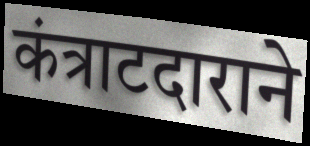
कंत्राटदाराने